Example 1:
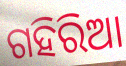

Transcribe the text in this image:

ଗହିରିଆ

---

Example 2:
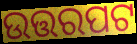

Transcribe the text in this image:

ଉତ୍ତରପଟ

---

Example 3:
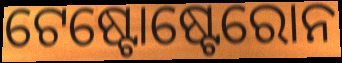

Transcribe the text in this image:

ଟେଷ୍ଟୋଷ୍ଟେରୋନ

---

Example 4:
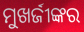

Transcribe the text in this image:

ମୁଖର୍ଜୀଙ୍କର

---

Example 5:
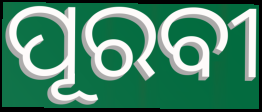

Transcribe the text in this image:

ପୂରବୀ